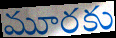
మూరకు